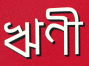
ঋণী